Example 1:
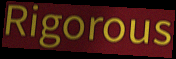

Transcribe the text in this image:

Rigorous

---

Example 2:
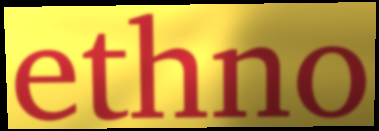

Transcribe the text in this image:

ethno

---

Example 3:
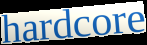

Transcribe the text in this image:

hardcore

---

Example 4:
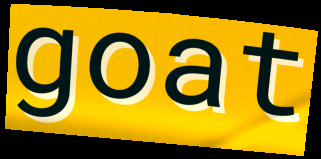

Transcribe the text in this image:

goat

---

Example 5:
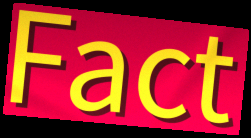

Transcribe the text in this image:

Fact